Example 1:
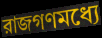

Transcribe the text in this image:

রাজগণমধ্যে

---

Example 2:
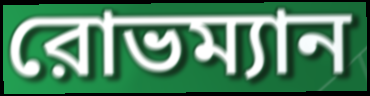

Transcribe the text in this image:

রোভম্যান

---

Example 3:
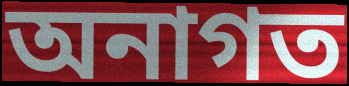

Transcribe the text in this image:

অনাগত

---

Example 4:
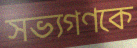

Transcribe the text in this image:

সভ্যগণকে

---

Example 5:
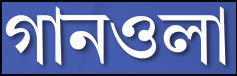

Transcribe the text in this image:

গানওলা